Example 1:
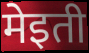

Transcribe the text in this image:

मेइती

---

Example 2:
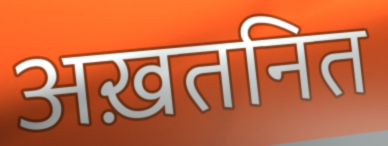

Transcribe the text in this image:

अख़तनित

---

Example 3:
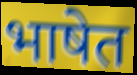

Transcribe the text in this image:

भाषेत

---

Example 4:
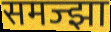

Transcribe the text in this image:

समज्झा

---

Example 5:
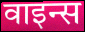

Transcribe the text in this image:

वाइन्स